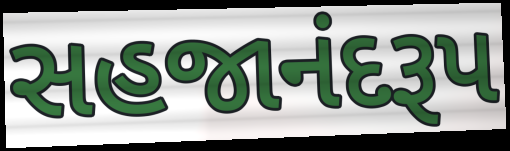
સહજાનંદરૂપ